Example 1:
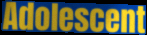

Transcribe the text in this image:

Adolescent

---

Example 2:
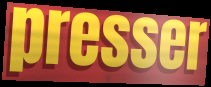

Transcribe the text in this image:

presser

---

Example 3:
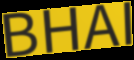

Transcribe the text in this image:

BHAI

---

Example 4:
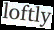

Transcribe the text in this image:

loftly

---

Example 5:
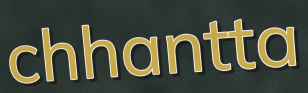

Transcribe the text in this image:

chhantta